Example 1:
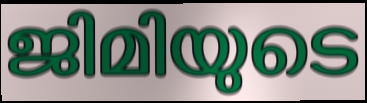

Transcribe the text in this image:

ജിമിയുടെ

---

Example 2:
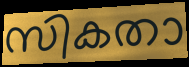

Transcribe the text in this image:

സികതാ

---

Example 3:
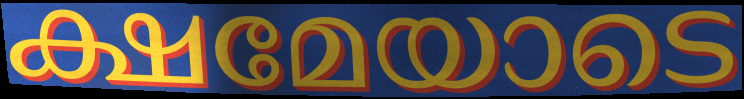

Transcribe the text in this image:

ക്ഷമേയാടെ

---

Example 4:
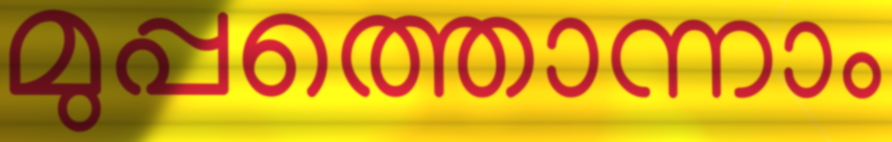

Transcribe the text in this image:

മുപ്പത്തൊന്നാം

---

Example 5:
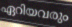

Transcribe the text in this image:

ഏറിയവരും